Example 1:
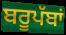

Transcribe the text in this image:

ਬਰੂਪੱਬਾਂ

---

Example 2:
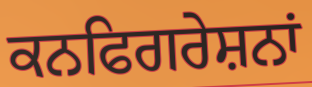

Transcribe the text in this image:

ਕਨਫਿਗਰੇਸ਼ਨਾਂ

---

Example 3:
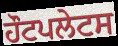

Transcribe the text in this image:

ਹੌਟਪਲੇਟਸ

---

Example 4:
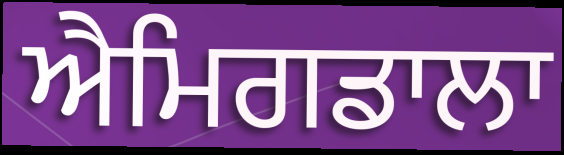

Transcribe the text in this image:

ਐਮਿਗਡਾਲਾ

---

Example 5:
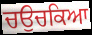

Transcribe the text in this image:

ਚਉਚਕਿਆ